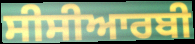
ਸੀਸੀਆਰਬੀ